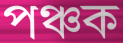
পঞ্চক